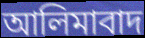
আলিমাবাদ